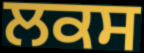
ਲਕਸ